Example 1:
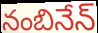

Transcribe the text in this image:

నంబినేన్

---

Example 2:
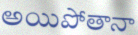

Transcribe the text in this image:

అయిపోతానా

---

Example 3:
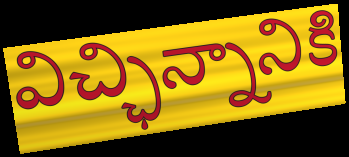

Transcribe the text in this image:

విచ్ఛిన్నానికి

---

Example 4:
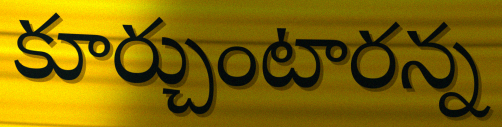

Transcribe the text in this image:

కూర్చుంటారన్న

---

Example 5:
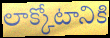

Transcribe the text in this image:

లాక్కోటానికి